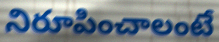
నిరూపించాలంటే